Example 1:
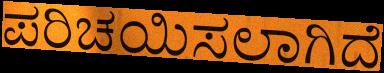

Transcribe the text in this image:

ಪರಿಚಯಿಸಲಾಗಿದೆ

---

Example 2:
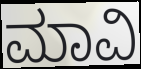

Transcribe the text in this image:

ಮಾವಿ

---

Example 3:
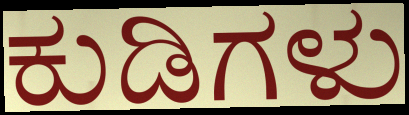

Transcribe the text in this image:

ಕುಡಿಗಳು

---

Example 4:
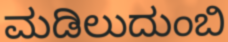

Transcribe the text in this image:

ಮಡಿಲುದುಂಬಿ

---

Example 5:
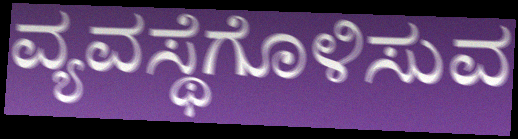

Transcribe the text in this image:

ವ್ಯವಸ್ಥೆಗೊಳಿಸುವ